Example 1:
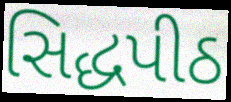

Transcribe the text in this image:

સિદ્ધપીઠ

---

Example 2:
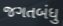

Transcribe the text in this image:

જગતબંધુ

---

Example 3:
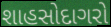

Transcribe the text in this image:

શાહસોદાગરો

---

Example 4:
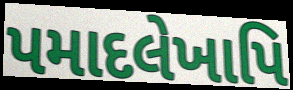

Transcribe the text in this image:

પમાદલેખાપિ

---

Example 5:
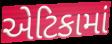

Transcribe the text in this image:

એટિકામાં